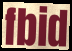
fbid